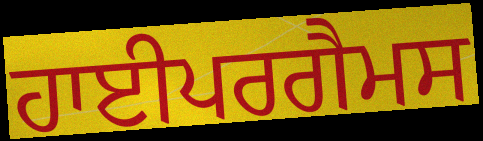
ਹਾਈਪਰਗੈਮਸ